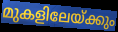
മുകളിലേയ്ക്കും